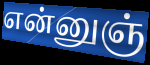
என்னுஞ்